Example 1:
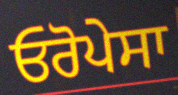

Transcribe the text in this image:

ਓਰੋਪੇਸਾ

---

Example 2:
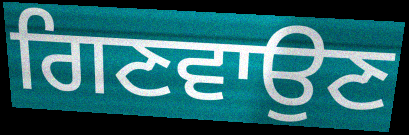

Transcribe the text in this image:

ਗਿਣਵਾਉਣ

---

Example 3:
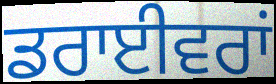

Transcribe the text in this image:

ਡਰਾਈਵਰਾਂ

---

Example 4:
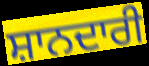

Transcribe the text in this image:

ਸ਼ਾਨਦਾਰੀ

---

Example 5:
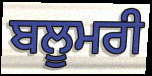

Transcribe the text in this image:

ਬਲੂਮਰੀ